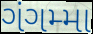
ગંગમ્મા